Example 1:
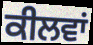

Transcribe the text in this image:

ਕੀਲਵਾਂ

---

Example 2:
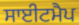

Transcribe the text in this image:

ਸਾਈਟਮੈਪ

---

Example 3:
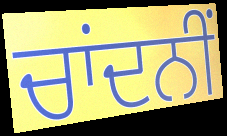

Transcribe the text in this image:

ਚਾਂਦਨੀਂ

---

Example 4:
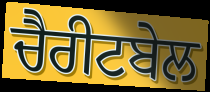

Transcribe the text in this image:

ਚੈਰੀਟਬੇਲ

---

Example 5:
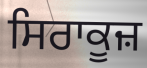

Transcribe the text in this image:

ਸਿਰਾਕੂਜ਼